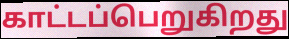
காட்டப்பெறுகிறது